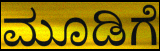
ಮೂಡಿಗೆ